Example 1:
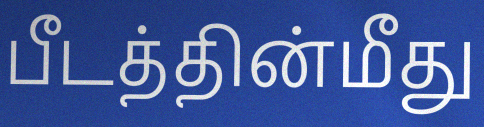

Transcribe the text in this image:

பீடத்தின்மீது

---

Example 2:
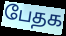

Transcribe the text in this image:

பேதக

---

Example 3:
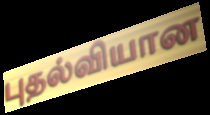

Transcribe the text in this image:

புதல்வியான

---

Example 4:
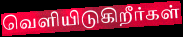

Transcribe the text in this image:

வெளியிடுகிறீர்கள்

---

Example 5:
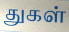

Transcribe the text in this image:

துகள்